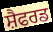
ਸ਼ੈਫਰਡ